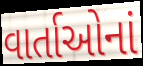
વાર્તાઓનાં